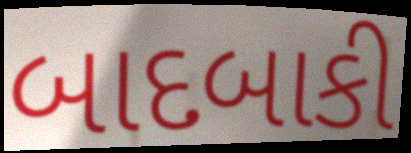
બાદબાકી